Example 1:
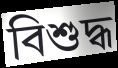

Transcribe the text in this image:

বিশুদ্ধ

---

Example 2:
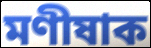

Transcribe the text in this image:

মণীষাক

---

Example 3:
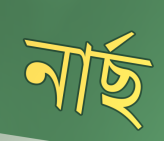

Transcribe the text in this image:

নাৰ্ছ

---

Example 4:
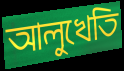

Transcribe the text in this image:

আলুখেতি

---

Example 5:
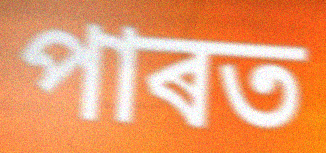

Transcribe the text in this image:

পাৰত